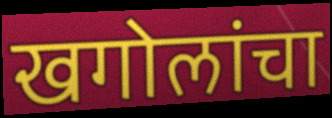
खगोलांचा